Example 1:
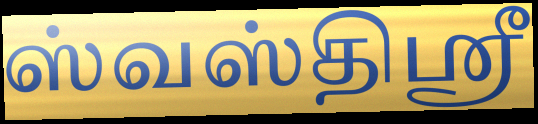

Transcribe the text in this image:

ஸ்வஸ்திஸ்ரீ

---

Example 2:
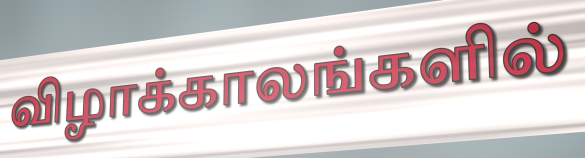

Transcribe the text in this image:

விழாக்காலங்களில்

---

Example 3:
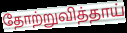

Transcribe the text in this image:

தோற்றுவித்தாய்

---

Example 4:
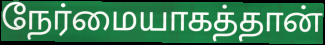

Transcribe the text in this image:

நேர்மையாகத்தான்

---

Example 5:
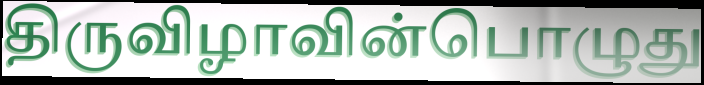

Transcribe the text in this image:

திருவிழாவின்பொழுது